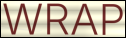
WRAP